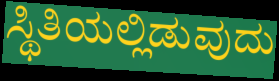
ಸ್ಥಿತಿಯಲ್ಲಿಡುವುದು